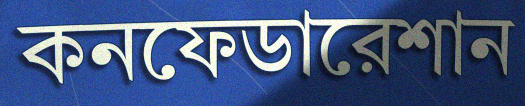
কনফেডারেশান